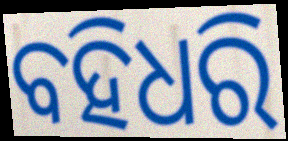
ବହିଧରି